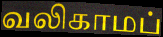
வலிகாமப்